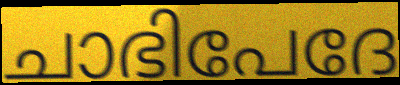
ചാഭിപേദേ